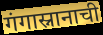
गंगास्नानाची